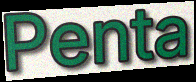
Penta